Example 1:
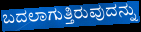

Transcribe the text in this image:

ಬದಲಾಗುತ್ತಿರುವುದನ್ನು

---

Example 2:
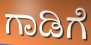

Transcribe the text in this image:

ಗಾಡಿಗೆ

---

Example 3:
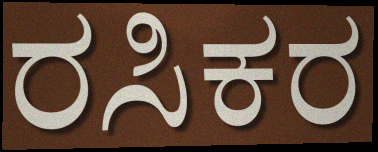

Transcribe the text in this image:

ರಸಿಕರ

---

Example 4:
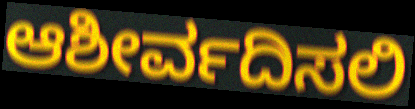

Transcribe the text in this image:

ಆಶೀರ್ವದಿಸಲಿ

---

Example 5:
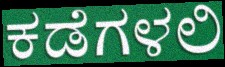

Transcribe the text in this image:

ಕಡೆಗಳಲಿ